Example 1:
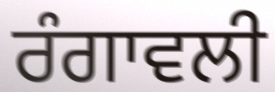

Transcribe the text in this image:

ਰੰਗਾਵਲੀ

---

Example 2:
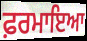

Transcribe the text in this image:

ਫ਼ਰਮਾਇਆ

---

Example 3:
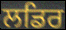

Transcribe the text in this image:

ਲਡਿਰ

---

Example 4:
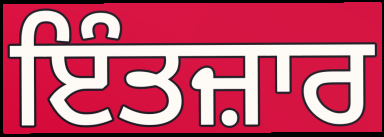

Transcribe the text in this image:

ਇੰਤਜ਼ਾਰ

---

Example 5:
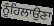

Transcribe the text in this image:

ਨੂੰਹਿਲਾਉਣਾ